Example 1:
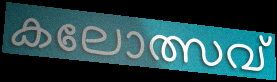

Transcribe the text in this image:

കലോത്സവ്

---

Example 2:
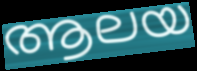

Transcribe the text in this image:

ആലയ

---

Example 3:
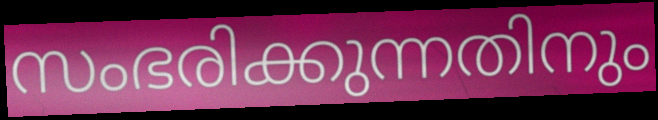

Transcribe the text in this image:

സംഭരിക്കുന്നതിനും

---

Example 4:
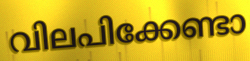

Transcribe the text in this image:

വിലപിക്കേണ്ടാ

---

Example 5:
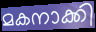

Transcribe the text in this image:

മകനാക്കി